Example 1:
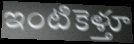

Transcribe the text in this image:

ఇంటికెళ్తూ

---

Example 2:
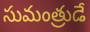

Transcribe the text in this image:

సుమంత్రుడే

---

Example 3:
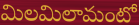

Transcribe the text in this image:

మిలమిలామంటో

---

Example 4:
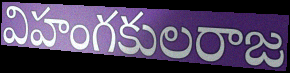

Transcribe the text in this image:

విహంగకులరాజ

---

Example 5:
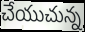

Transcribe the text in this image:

చేయుచున్న